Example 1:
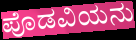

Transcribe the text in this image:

ಪೊಡವಿಯನು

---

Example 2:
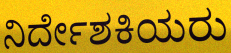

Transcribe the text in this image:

ನಿರ್ದೇಶಕಿಯರು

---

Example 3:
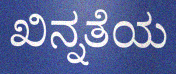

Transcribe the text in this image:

ಖಿನ್ನತೆಯ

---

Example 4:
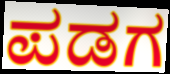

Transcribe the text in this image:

ಪಡಗ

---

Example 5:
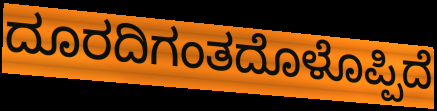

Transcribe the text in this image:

ದೂರದಿಗಂತದೊಳೊಪ್ಪಿದೆ